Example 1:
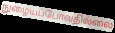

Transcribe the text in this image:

நுழையப்போவதில்லை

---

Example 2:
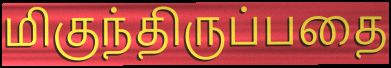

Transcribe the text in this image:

மிகுந்திருப்பதை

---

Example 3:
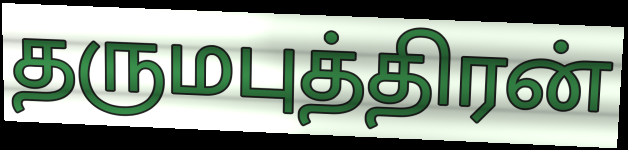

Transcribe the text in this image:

தருமபுத்திரன்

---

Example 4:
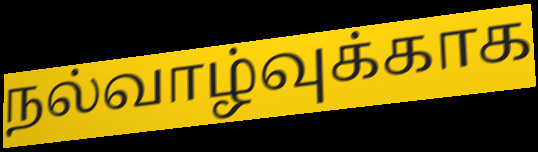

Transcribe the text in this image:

நல்வாழ்வுக்காக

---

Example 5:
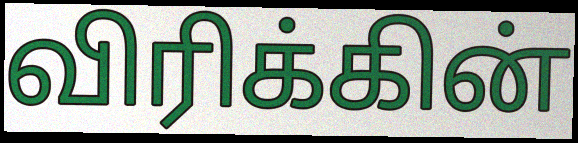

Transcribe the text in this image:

விரிக்கின்